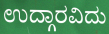
ಉದ್ಗಾರವಿದು